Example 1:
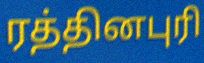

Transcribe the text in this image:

ரத்தினபுரி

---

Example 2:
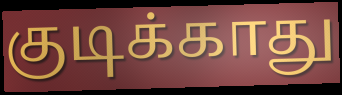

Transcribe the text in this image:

குடிக்காது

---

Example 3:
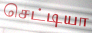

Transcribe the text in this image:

செட்டியா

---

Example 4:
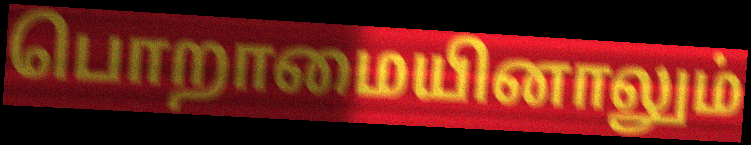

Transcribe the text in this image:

பொறாமையினாலும்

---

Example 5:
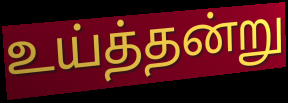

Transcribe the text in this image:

உய்த்தன்று